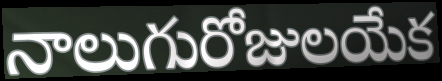
నాలుగురోజులయేక